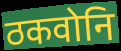
ठकवोनि